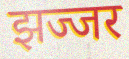
झज्जर